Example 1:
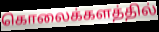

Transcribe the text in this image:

கொலைக்களத்தில்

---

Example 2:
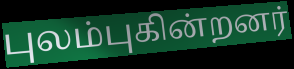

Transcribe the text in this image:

புலம்புகின்றனர்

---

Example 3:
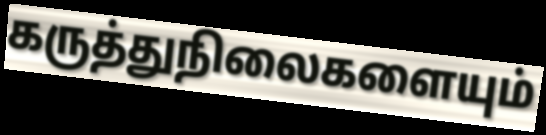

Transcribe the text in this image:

கருத்துநிலைகளையும்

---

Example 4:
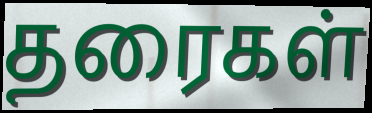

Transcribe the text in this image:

தரைகள்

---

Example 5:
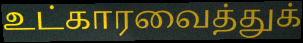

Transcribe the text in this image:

உட்காரவைத்துக்